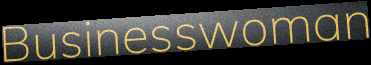
Businesswoman